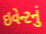
ઇવેન્ટનું